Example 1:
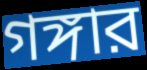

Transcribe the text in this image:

গঙ্গার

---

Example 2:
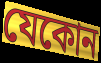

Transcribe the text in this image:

যেকোন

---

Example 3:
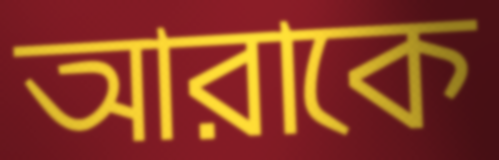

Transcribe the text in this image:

আরাকে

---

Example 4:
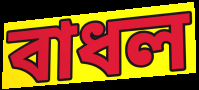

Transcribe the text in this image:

বাধল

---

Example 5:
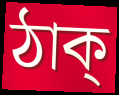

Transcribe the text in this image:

ঠাক্